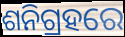
ଶନିଗ୍ରହରେ